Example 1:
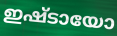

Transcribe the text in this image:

ഇഷ്ടായോ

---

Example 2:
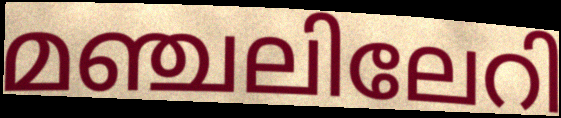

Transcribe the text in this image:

മഞ്ചലിലേറി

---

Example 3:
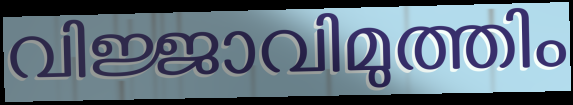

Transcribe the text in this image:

വിജ്ജാവിമുത്തിം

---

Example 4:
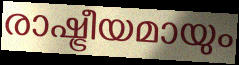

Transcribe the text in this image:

രാഷ്ട്രീയമായും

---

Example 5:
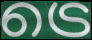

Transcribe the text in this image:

ട്രെ